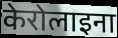
केरोलाइना